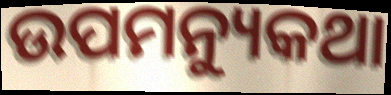
ଉପମନ୍ୟୁକଥା